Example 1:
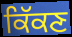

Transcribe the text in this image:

ਕਿੱਕਣ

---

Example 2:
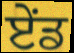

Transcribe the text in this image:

ਏੰਡ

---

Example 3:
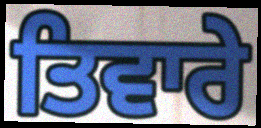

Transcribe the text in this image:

ਤਿਵਾਰੇ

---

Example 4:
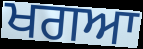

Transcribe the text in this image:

ਖਗਆ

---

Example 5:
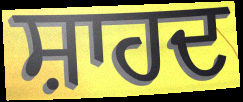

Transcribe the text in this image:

ਸ਼ਾਹਦ